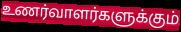
உணர்வாளர்களுக்கும்